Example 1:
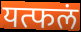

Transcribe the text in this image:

यत्फलं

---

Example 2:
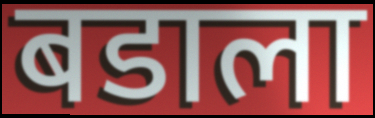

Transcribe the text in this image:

बडाला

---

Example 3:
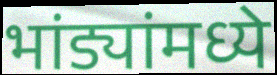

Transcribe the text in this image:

भांड्यांमध्ये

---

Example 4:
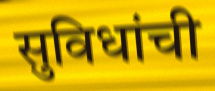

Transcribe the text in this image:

सुविधांची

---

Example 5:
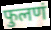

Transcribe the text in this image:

फुलणं